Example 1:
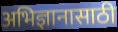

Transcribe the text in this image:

अभिज्ञानासाठी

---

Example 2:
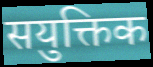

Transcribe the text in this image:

सयुक्तिक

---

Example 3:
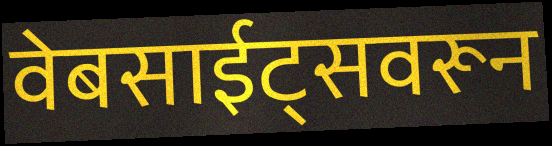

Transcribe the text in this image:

वेबसाईट्सवरून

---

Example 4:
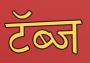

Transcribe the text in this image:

टॅब्ज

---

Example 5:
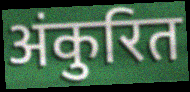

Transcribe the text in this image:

अंकुरित